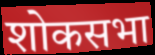
शोकसभा